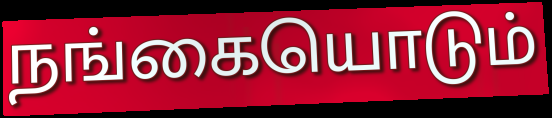
நங்கையொடும்